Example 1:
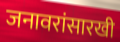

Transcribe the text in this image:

जनावरांसारखी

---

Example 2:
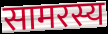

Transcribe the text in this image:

सामरस्य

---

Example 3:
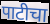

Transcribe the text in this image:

पाटीचा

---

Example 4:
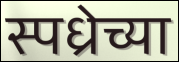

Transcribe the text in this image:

स्पध्रेच्या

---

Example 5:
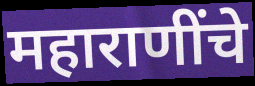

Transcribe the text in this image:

महाराणींचे